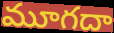
మూగదా